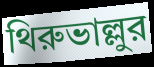
থিরুভাল্লুর